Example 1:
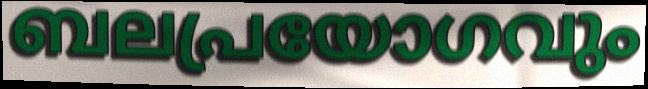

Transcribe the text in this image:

ബലപ്രയോഗവും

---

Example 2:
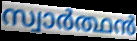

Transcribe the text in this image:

സ്വാർത്ഥൻ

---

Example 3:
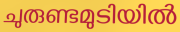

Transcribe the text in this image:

ചുരുണ്ടമുടിയിൽ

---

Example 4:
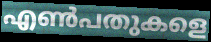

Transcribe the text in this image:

എൺപതുകളെ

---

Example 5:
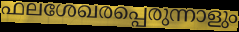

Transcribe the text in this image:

ഫലശേഖരപ്പെരുന്നാളും